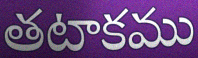
తటాకము